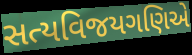
સત્યવિજયગણિએ